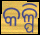
କଳ୍ପି